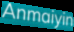
Anmaiyin